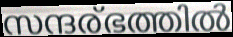
സന്ദര്ഭത്തിൽ